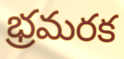
భ్రమరక